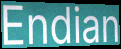
Endian